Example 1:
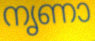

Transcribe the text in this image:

നൃണാ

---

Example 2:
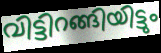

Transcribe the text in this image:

വിട്ടിറങ്ങിയിട്ടും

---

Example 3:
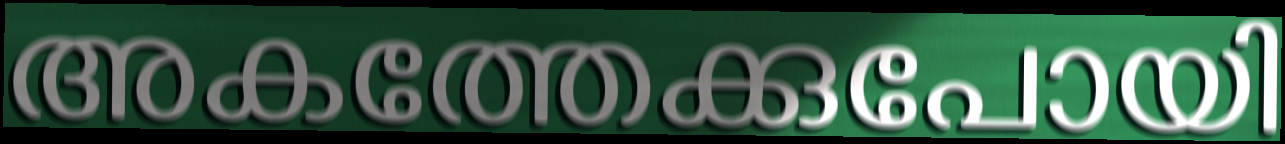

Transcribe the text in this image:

അകത്തേക്കുപോയി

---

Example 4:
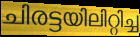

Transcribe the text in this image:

ചിരട്ടയിലിറ്റിച്ച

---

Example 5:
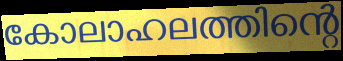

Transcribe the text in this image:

കോലാഹലത്തിന്റെ